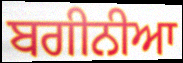
ਬਗੀਨੀਆ